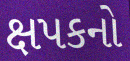
ક્ષપકનો